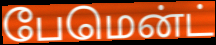
பேமென்ட்